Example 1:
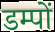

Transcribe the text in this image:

डम्पों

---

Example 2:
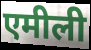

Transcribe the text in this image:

एमीली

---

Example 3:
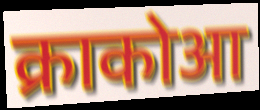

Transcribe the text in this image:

क्राकोआ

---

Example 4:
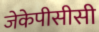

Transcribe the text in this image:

जेकेपीसीसी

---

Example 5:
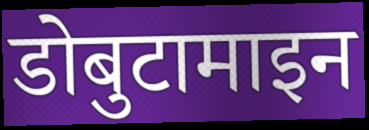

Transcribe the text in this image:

डोबुटामाइन